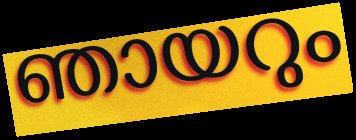
ഞായറും